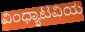
ವಿಂಧ್ಯಾಟವಿಯ